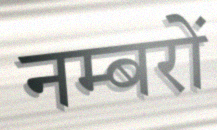
नम्बरों